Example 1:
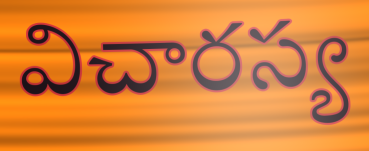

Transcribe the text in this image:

విచారస్య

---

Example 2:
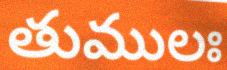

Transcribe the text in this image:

తుములః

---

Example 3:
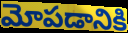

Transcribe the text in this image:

మోపడానికి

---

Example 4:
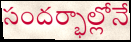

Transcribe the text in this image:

సందర్భాల్లోనే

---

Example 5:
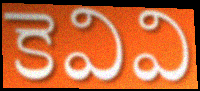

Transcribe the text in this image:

కెవివి